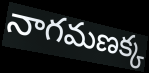
నాగమణక్క